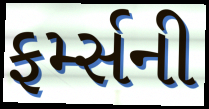
ફર્મ્સની